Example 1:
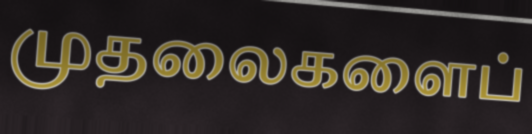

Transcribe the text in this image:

முதலைகளைப்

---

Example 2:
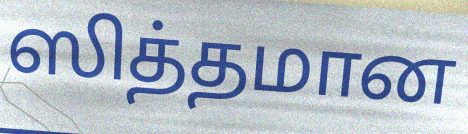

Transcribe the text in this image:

ஸித்தமான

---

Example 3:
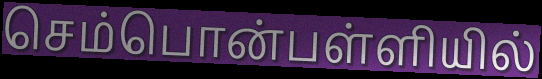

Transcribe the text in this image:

செம்பொன்பள்ளியில்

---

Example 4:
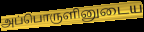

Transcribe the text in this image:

அப்பொருளினுடைய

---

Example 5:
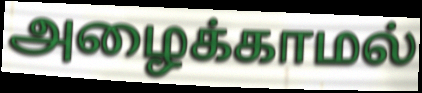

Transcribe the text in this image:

அழைக்காமல்